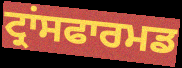
ਟ੍ਰਾਂਸਫਾਰਮਡ